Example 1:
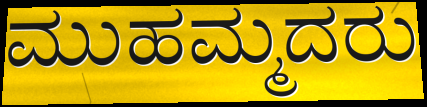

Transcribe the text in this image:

ಮುಹಮ್ಮದರು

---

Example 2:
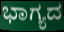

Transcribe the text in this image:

ಭಾಗ್ಯದ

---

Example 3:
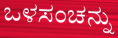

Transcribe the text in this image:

ಒಳಸಂಚನ್ನು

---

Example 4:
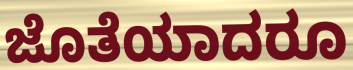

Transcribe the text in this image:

ಜೊತೆಯಾದರೂ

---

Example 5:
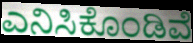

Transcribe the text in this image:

ಎನಿಸಿಕೊಂಡಿವೆ